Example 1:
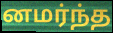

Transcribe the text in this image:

னமர்ந்த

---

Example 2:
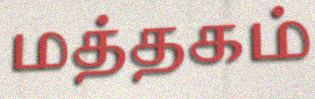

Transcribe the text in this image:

மத்தகம்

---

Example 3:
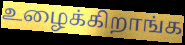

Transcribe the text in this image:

உழைக்கிறாங்க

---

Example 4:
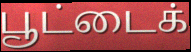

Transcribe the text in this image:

பூட்டைக்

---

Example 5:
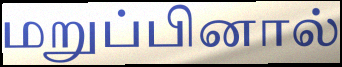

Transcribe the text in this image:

மறுப்பினால்